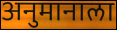
अनुमानाला